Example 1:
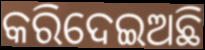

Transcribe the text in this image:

କରିଦେଇଅଛି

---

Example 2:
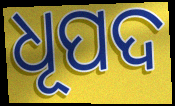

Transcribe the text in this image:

ଧୂପଦ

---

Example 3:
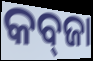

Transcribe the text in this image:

କବ୍‌ଜା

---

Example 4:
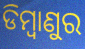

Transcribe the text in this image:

ଡିମ୍ବାଣୁର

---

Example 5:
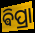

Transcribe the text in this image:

ଵିପ୍ରା